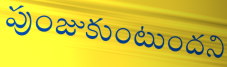
పుంజుకుంటుందని